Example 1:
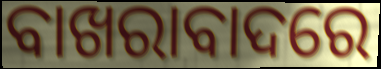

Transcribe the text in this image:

ବାଖରାବାଦରେ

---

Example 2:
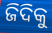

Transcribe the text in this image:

ଜିଦିକୁ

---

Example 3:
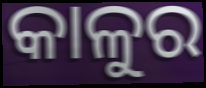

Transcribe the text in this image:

କାଳୁର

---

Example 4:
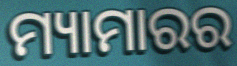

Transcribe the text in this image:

ମ୍ୟାମାରର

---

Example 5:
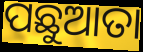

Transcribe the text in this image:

ପଛୁଆତା